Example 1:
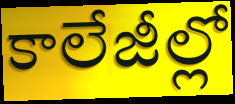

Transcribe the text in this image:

కాలేజీల్లో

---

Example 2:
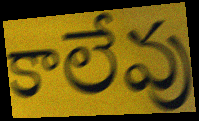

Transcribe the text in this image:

కాలేవు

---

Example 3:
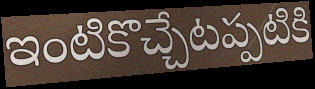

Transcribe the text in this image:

ఇంటికొచ్చేటప్పటికి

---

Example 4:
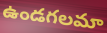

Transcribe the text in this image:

ఉండగలమా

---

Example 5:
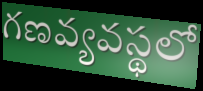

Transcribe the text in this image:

గణవ్యవస్థలో